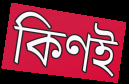
কিণই